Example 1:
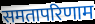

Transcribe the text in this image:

समतापरिणाम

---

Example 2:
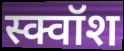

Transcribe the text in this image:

स्क्वॉश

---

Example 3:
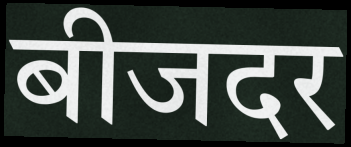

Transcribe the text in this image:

बीजदर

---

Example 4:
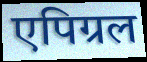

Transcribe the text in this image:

एपिग्रल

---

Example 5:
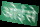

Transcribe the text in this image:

ओईसे